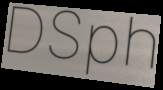
DSph